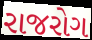
રાજરોગ